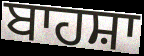
ਬਾਹਸ਼ਾ